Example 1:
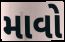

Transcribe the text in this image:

માવો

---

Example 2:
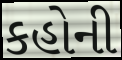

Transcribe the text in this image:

કહોની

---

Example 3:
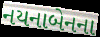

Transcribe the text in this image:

નયનાબેનના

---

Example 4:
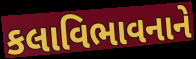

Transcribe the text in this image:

કલાવિભાવનાને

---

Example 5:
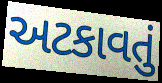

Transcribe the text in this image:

અટકાવતું